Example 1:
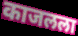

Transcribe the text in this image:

काजलला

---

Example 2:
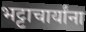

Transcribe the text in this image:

भट्टाचार्यांना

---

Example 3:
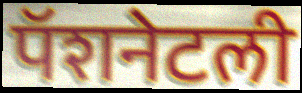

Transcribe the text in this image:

पॅशनेटली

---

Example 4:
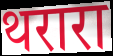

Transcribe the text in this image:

थरारा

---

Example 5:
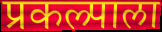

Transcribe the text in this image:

प्रकल्पाला